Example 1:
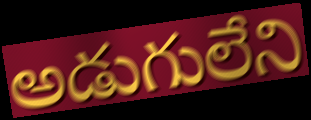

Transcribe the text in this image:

అడుగులేని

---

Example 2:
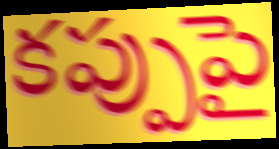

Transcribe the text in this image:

కప్పుపై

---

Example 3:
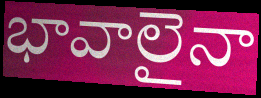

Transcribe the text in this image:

భావాలైనా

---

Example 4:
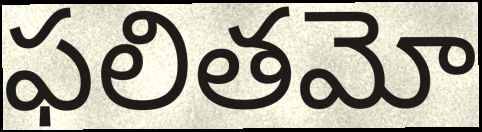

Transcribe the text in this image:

ఫలితమో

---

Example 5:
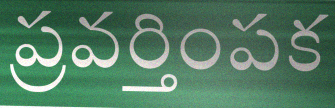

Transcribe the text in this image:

ప్రవర్తింపక